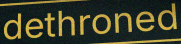
dethroned